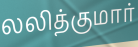
லலித்குமார்